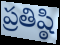
ప్రతిష్ఠి